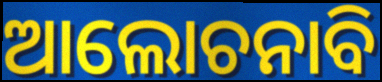
ଆଲୋଚନାବି